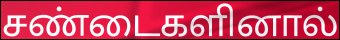
சண்டைகளினால்